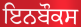
ਇਨਬੌਕਸ